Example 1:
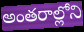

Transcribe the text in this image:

అంతరాల్లోని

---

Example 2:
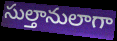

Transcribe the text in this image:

సుల్తానులాగా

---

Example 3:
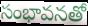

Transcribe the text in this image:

సంభావనతో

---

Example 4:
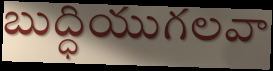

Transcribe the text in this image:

బుద్ధియుగలవా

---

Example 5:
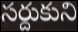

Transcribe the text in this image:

సర్దుకుని